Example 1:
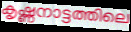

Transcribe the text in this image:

കൃഷ്ണനാട്ടത്തിലെ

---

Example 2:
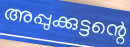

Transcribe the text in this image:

അപ്പുക്കുട്ടന്റെ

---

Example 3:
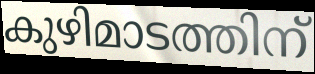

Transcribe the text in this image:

കുഴിമാടത്തിന്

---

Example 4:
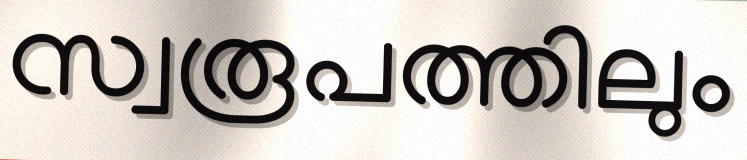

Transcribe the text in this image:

സ്വരൂപത്തിലും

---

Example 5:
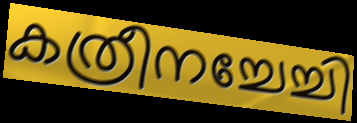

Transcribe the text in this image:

കത്രീനച്ചേച്ചി